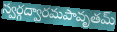
స్వర్గద్వారమపావృతమ్